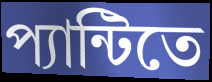
প্যান্টিতে